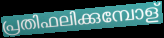
പ്രതിഫലിക്കുമ്പോള്